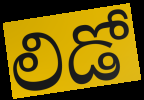
లిడో